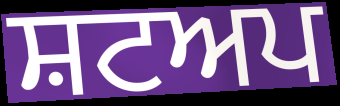
ਸ਼ਟਅਪ